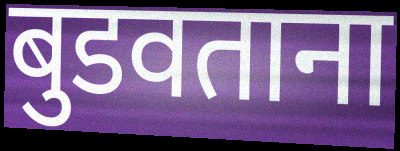
बुडवताना